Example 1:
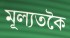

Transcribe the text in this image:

মূল্যতকৈ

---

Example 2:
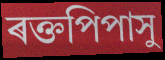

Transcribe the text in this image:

ৰক্তপিপাসু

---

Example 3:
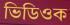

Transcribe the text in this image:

ভিডিওক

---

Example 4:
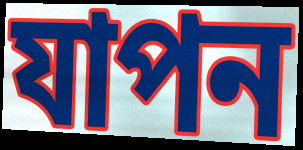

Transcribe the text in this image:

যাপন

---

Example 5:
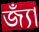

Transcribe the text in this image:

জ্যাঁ